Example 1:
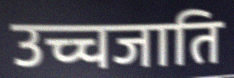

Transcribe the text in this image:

उच्चजाति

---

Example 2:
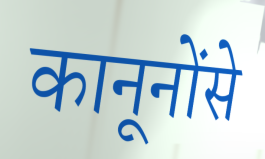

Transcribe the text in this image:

कानूनोंसे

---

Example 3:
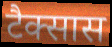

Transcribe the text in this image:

टैक्सास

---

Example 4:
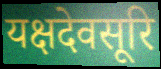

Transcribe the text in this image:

यक्षदेवसूरि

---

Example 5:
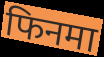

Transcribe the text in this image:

फिनमा